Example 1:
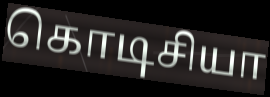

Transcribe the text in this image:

கொடிசியா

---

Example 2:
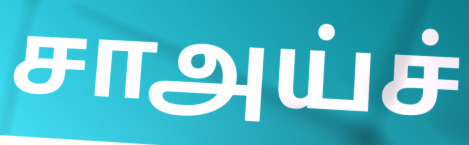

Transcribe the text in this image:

சாஅய்ச்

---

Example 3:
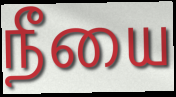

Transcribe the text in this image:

நீயை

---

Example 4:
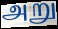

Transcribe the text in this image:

அறு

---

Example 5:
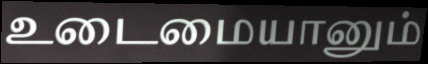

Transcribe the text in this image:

உடைமையானும்